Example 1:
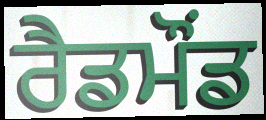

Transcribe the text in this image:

ਰੈਡਮੌਂਡ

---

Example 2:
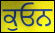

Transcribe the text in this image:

ਕੁਓਨ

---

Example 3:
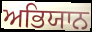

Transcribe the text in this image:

ਅਭਿਯਾਨ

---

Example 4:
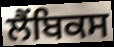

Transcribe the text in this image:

ਲੈਂਬਿਕਸ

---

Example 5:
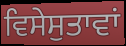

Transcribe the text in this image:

ਵਿਸੇਸੁਤਾਵਾਂ